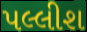
પલ્લીશ